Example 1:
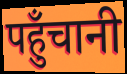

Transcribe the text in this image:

पहुँचानी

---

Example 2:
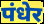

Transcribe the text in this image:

पंधेर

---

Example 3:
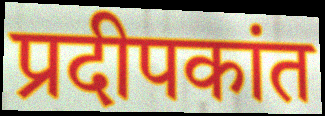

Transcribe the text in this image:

प्रदीपकांत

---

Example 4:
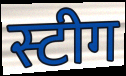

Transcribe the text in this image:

स्टीग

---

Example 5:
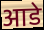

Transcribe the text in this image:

आडे